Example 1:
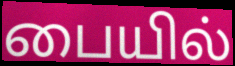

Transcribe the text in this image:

பையில்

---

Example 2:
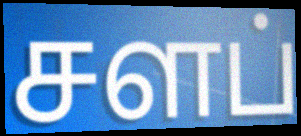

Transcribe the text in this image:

சளப்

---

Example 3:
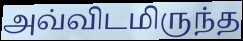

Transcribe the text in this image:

அவ்விடமிருந்த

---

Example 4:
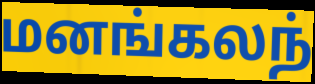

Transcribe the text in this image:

மனங்கலந்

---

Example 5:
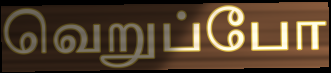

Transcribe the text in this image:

வெறுப்போ